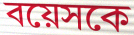
বয়েসকে